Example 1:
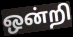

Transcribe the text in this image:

ஒன்றி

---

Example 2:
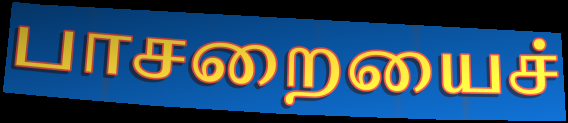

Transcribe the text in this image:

பாசறையைச்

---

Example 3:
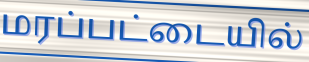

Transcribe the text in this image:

மரப்பட்டையில்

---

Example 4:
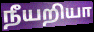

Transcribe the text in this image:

நீயறியா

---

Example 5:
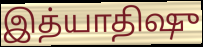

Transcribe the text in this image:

இத்யாதிஷு